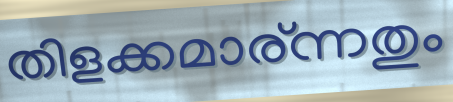
തിളക്കമാര്ന്നതും